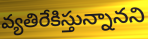
వ్యతిరేకిస్తున్నానని